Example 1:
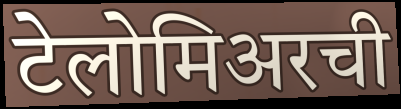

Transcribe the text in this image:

टेलोमिअरची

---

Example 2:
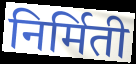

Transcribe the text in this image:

निर्मिती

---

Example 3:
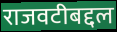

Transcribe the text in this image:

राजवटीबद्दल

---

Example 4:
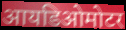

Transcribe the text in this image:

आयडिओमोटर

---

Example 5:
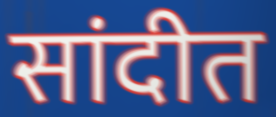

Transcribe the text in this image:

सांदीत